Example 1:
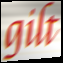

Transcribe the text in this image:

gilt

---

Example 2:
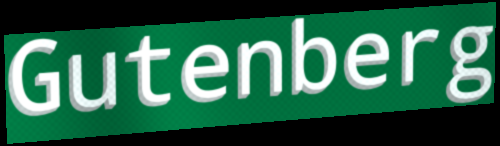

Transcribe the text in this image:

Gutenberg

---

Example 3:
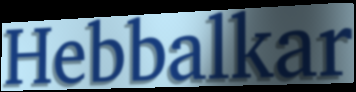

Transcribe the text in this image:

Hebbalkar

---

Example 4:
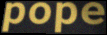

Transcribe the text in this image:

pope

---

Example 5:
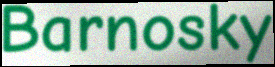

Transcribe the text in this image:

Barnosky